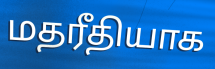
மதரீதியாக